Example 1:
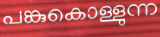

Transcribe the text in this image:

പങ്കുകൊള്ളുന്ന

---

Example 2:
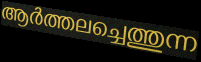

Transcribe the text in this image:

ആർത്തലച്ചെത്തുന്ന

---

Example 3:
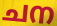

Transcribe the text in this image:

ചന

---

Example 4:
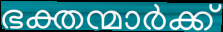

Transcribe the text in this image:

ഭക്തന്മാർക്ക്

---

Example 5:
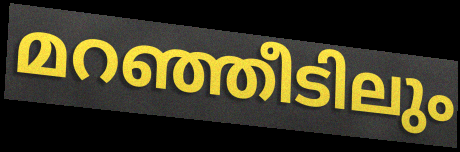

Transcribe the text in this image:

മറഞ്ഞീടിലും